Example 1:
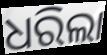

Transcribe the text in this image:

ଧରିଲା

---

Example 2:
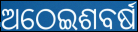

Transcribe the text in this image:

ଅଠେଇଶବର୍ଷ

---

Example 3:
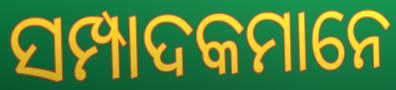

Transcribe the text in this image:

ସମ୍ପାଦକମାନେ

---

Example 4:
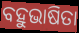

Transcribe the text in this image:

ବହୁଭାଷିତା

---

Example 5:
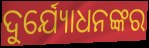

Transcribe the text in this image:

ଦୁର୍ଯ୍ୟୋଧନଙ୍କର